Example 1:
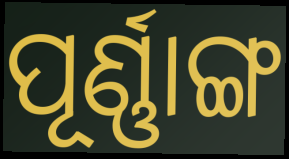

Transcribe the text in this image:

ପୂର୍ଣ୍ଣାଙ୍ଗ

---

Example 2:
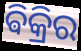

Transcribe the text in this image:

ଵିକ୍ରିର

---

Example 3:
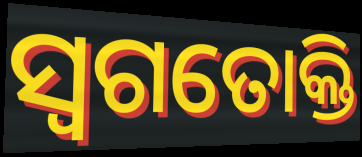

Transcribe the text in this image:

ସ୍ୱଗତୋକ୍ତି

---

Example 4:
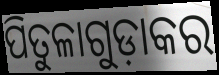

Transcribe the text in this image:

ପିତୁଳାଗୁଡ଼ାକର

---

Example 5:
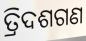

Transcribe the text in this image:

ତ୍ରିଦଶଗଣ